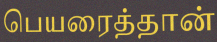
பெயரைத்தான்